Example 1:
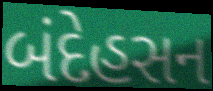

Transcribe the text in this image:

બંદેહસન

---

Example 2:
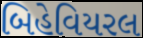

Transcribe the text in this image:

બિહેવિયરલ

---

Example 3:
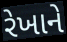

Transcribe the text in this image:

રેખાને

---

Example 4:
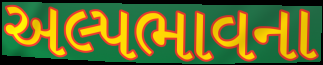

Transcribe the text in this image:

અલ્પભાવના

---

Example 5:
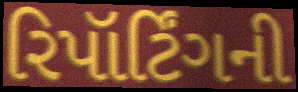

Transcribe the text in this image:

રિપૉર્ટિંગની